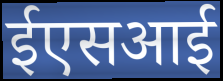
ईएसआई